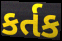
કર્તક